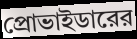
প্রোভাইডারের